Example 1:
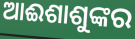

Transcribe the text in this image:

ଆଈଶାଶୁଙ୍କର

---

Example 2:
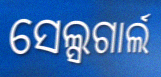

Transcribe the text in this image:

ସେଲ୍ସଗାର୍ଲ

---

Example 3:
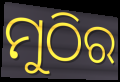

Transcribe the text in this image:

ମୁଠିର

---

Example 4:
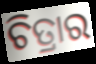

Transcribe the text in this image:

ଚିତ୍ରାର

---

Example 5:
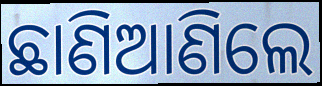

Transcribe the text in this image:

ଛାଣିଆଣିଲେ